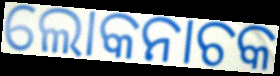
ଲୋକନାଚକ